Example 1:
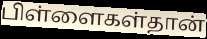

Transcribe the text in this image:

பிள்ளைகள்தான்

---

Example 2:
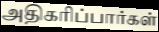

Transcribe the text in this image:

அதிகரிப்பார்கள்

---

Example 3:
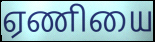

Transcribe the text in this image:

ஏணியை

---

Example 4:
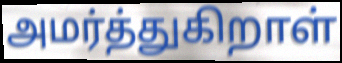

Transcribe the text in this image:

அமர்த்துகிறாள்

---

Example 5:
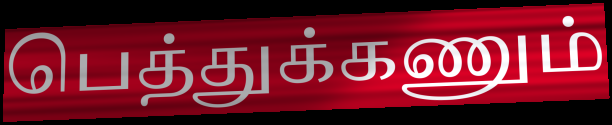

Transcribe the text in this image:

பெத்துக்கணும்